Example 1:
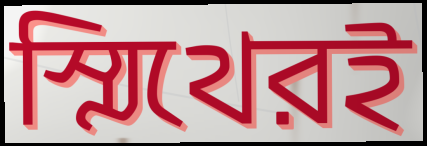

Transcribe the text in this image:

স্মিথেরই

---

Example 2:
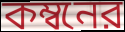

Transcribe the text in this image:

কম্বনের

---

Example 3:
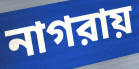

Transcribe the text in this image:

নাগরায়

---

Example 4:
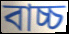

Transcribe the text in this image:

বাচ্চ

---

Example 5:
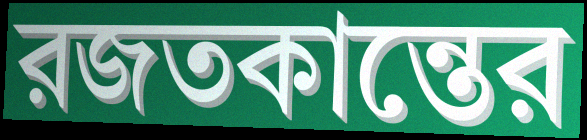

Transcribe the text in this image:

রজতকান্তের